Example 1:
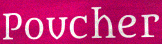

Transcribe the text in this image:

Poucher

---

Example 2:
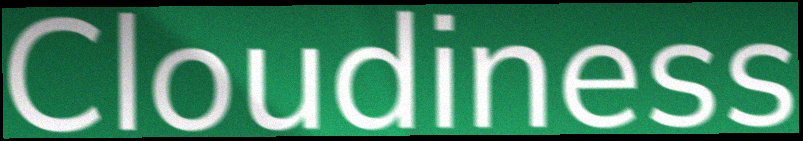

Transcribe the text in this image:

Cloudiness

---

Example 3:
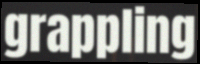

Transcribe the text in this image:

grappling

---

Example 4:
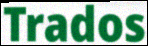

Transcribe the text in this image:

Trados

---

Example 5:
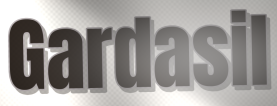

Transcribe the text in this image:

Gardasil